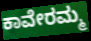
ಕಾವೇರಮ್ಮ